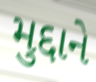
મુદ્દાને